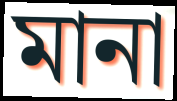
মানা